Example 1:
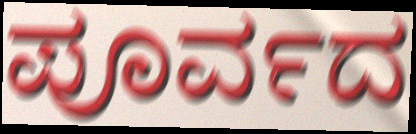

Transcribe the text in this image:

ಪೂರ್ವದ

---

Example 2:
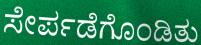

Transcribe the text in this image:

ಸೇರ್ಪಡೆಗೊಂಡಿತು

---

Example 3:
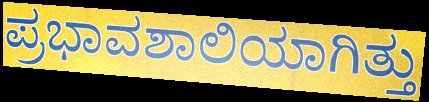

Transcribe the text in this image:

ಪ್ರಭಾವಶಾಲಿಯಾಗಿತ್ತು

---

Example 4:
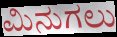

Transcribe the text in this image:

ಮಿನುಗಲು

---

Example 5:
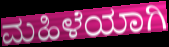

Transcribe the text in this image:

ಮಹಿಳೆಯಾಗಿ